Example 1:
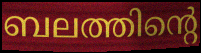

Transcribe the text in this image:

ബലത്തിന്റെ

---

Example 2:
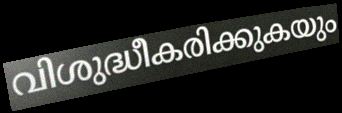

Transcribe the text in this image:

വിശുദ്ധീകരിക്കുകയും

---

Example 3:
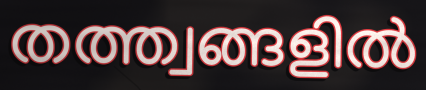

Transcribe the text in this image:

തത്ത്വങ്ങളിൽ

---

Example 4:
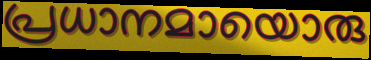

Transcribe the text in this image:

പ്രധാനമായൊരു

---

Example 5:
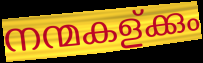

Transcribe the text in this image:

നന്മകള്ക്കും